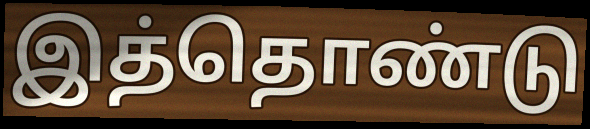
இத்தொண்டு